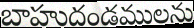
బాహుదండములను